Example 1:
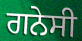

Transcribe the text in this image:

ਗਨੇਸੀ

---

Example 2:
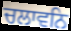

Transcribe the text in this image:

ਚਲਾਵਨਿ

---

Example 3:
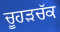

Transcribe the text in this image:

ਚੂਹਡ਼ਚੱਕ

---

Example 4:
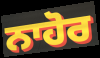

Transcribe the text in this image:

ਨਾਹੋਰ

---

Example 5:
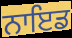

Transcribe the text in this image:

ਨਾਇਡ